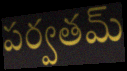
పర్వతమ్